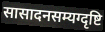
सासादनसम्यग्दृष्टि